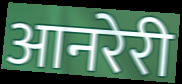
आनरेरी